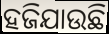
ହଜିଯାଉଛି